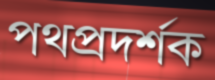
পথপ্রদর্শক